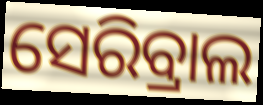
ସେରିବ୍ରାଲ